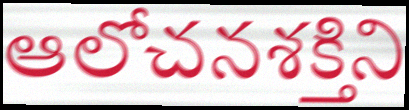
ఆలోచనశక్తిని